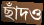
ছাঁদও